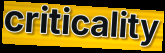
criticality